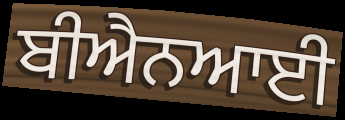
ਬੀਐਨਆਈ